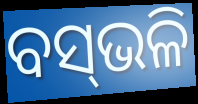
ବସ୍‌ଭଳି